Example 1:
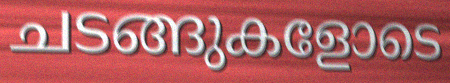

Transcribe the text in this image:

ചടങ്ങുകളോടെ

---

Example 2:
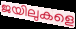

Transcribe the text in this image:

ജയിലുകളെ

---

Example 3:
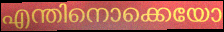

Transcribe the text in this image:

എന്തിനൊക്കെയോ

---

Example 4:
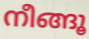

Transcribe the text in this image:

നീങ്ങൂ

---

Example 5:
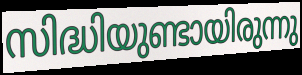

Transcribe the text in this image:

സിദ്ധിയുണ്ടായിരുന്നു